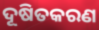
ଦୂଷିତକରଣ